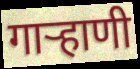
गार्‍हाणी